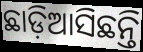
ଛାଡ଼ିଆସିଛନ୍ତି